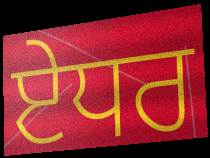
ਏਧਰ